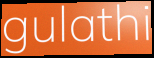
gulathi